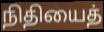
நிதியைத்